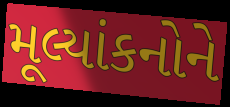
મૂલ્યાંકનોને